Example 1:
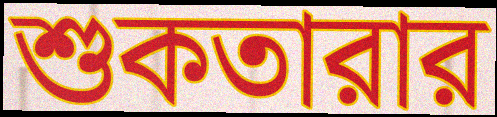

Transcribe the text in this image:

শুকতারার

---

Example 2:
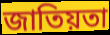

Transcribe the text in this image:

জাতিয়তা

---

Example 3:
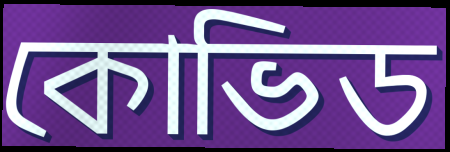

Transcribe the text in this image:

কোভিড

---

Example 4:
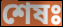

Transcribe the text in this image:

শেষঃ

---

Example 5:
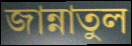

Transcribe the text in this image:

জান্নাতুল